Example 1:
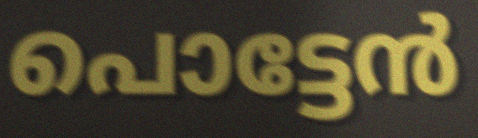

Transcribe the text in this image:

പൊട്ടേൻ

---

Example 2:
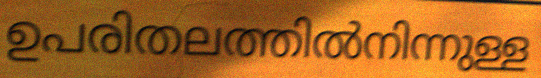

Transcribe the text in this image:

ഉപരിതലത്തിൽനിന്നുള്ള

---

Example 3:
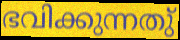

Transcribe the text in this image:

ഭവിക്കുന്നതു്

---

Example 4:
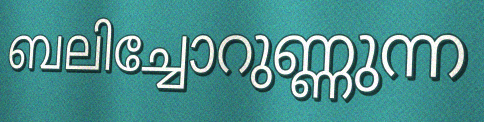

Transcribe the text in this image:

ബലിച്ചോറുണ്ണുന്ന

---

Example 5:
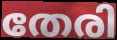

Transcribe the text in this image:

തേരി